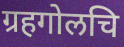
ग्रहगोलचि